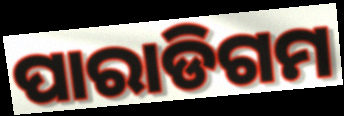
ପାରାଡିଗମ